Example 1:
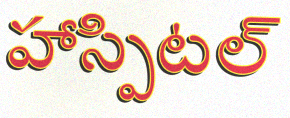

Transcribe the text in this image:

హాస్పిటల్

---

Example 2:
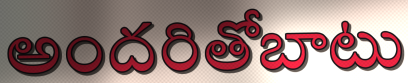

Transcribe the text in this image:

అందరితోబాటు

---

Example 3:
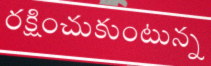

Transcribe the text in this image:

రక్షించుకుంటున్న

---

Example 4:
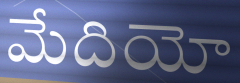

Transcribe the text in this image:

మేదియో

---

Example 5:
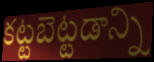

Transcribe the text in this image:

కట్టబెట్టడాన్ని